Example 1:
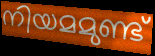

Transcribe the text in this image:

നിയമമുണ്ട്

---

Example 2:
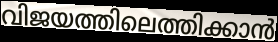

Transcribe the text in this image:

വിജയത്തിലെത്തിക്കാൻ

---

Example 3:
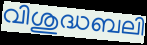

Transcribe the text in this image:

വിശുദ്ധബലി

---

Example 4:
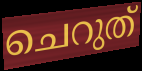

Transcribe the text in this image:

ചെറുത്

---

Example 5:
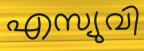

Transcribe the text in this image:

എസ്യുവി